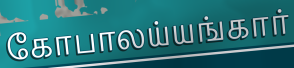
கோபாலய்யங்கார்